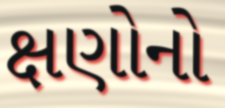
ક્ષણોનો